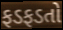
ફડફડતો